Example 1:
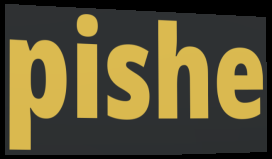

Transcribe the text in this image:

pishe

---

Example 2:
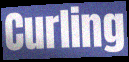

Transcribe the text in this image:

Curling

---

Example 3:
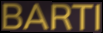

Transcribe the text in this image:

BARTI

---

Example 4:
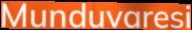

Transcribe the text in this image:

Munduvaresi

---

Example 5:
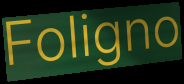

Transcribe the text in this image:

Foligno